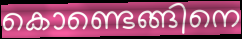
കൊണ്ടെങ്ങിനെ